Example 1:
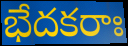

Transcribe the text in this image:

భేదకరాః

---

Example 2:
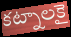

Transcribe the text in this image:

కట్నాలకై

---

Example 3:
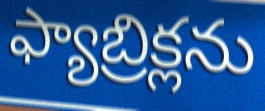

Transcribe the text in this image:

ఫ్యాబ్రిక్లను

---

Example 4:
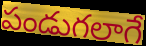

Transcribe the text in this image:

పండుగలాగే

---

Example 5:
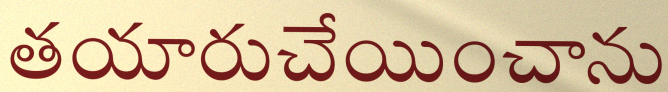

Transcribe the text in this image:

తయారుచేయించాను